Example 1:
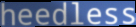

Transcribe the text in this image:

heedless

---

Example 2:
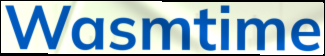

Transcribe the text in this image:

Wasmtime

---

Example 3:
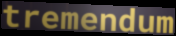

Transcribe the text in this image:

tremendum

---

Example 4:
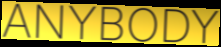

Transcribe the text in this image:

ANYBODY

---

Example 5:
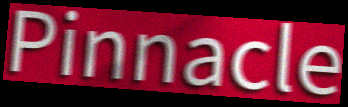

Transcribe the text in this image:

Pinnacle